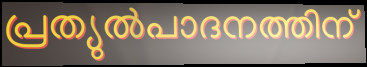
പ്രത്യുൽപാദനത്തിന്